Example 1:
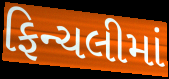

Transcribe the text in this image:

ફિન્ચલીમાં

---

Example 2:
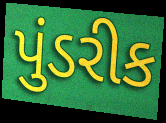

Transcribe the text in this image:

પુંડરીક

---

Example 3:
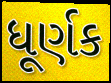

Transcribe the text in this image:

ધૂર્ણક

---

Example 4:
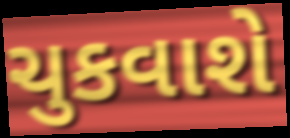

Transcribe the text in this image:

ચુકવાશે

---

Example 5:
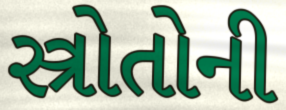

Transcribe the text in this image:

સ્ત્રોતોની